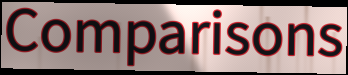
Comparisons